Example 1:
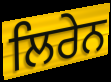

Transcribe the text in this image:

ਲਿਰੇਨ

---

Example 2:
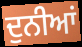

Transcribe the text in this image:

ਦੁਨੀਆਂ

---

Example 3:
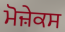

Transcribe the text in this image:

ਮੋਜ਼ੇਕਸ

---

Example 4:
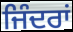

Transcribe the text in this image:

ਜਿੰਦਰਾਂ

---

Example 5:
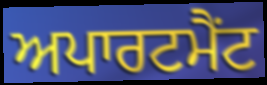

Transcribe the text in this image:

ਅਪਾਰਟਮੈਂਟ